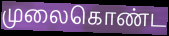
முலைகொண்ட